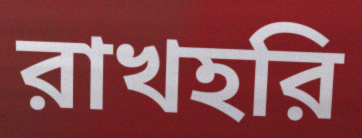
রাখহরি